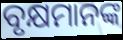
ବୃକ୍ଷମାନଙ୍କ